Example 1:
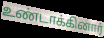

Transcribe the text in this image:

உண்டாக்கினார்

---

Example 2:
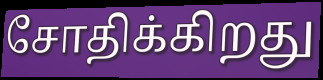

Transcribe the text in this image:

சோதிக்கிறது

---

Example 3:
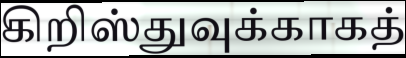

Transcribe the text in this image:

கிறிஸ்துவுக்காகத்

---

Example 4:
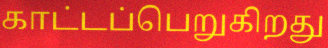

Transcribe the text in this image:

காட்டப்பெறுகிறது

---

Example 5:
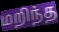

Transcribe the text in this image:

மறிந்த